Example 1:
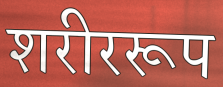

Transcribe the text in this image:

शरीररूप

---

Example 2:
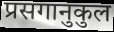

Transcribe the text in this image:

प्रसगानुकुल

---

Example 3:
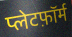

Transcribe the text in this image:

प्लेटफ़ॉर्म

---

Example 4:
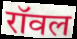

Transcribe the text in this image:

रॉवल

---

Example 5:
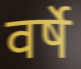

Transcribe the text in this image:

वर्षे